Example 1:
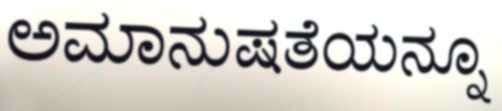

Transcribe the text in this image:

ಅಮಾನುಷತೆಯನ್ನೂ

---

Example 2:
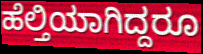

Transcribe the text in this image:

ಹೆಲ್ತಿಯಾಗಿದ್ದರೂ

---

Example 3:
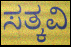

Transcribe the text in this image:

ಸತ್ಕವಿ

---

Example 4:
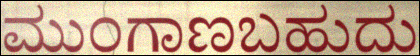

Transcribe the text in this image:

ಮುಂಗಾಣಬಹುದು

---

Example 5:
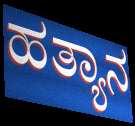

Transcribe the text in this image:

ಹತ್ಯಾನ